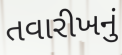
તવારીખનું